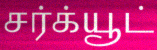
சர்க்யூட்